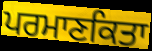
ਪਰਮਾਣਕਿਤਾ